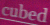
cubed